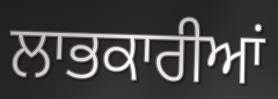
ਲਾਭਕਾਰੀਆਂ